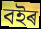
বইৰ